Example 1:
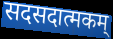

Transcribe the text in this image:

सदसदात्मकम्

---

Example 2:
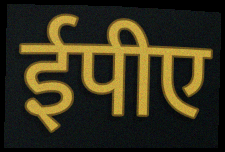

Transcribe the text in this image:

ईपीए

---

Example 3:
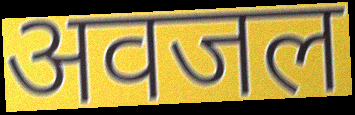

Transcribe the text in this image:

अवजल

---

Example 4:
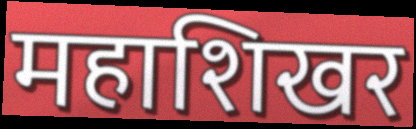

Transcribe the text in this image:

महाशिखर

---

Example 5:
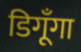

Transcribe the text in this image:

डिगूँगा